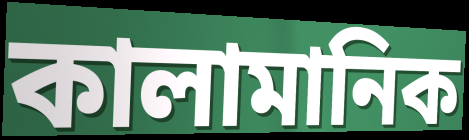
কালামানিক